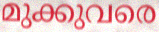
മുക്കുവരെ